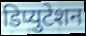
डिप्युटेशन